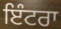
ਇੰਟਰਾ